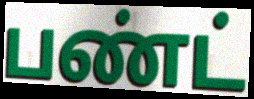
பண்ட்